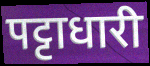
पट्टाधारी